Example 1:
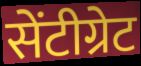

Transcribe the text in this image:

सेंटीग्रेट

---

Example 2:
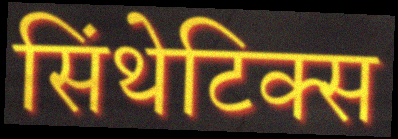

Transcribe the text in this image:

सिंथेटिक्स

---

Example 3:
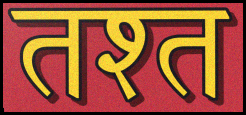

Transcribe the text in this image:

तश्त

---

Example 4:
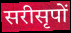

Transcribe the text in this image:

सरीसृपों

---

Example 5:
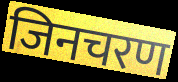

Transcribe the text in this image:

जिनचरण